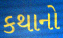
કથાનો